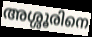
അശ്ശൂരിനെ